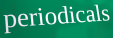
periodicals